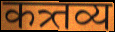
कत्र्तव्य